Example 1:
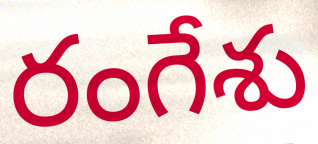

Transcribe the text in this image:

రంగేశు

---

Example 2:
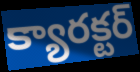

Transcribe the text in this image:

క్యారక్టర్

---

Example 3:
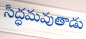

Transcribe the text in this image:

సిద్ధమవుతాడు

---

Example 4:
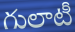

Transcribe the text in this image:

గులాటీ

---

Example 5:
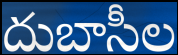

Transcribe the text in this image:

దుబాసీల